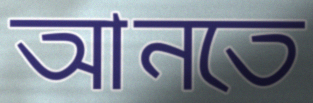
আনতে